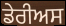
ਡੇਰੀਅਸ